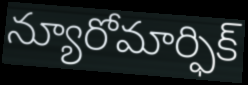
న్యూరోమార్ఫిక్